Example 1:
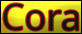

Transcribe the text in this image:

Cora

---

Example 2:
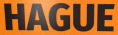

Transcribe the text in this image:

HAGUE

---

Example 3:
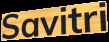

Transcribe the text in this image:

Savitri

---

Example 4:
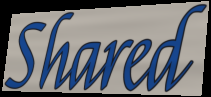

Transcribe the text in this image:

Shared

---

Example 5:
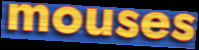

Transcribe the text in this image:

mouses